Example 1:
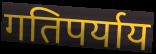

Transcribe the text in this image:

गतिपर्याय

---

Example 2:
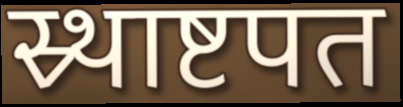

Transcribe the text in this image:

स्र्थाष्टपत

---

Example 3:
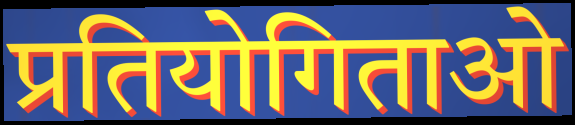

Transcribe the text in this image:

प्रतियोगिताओ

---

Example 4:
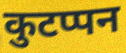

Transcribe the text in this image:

कुटप्पन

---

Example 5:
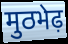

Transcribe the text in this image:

मुठभेढ़